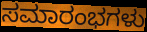
ಸಮಾರಂಭಗಳು